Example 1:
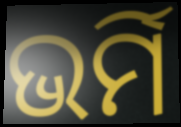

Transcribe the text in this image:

ଭର୍ମି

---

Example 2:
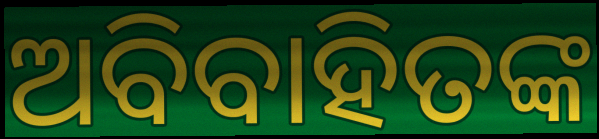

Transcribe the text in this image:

ଅବିବାହିତଙ୍କ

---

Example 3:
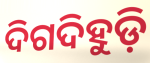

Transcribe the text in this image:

ଦିଗଦିହୁଡ଼ି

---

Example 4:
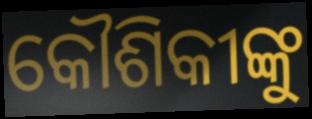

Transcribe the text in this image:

କୌଶିକୀଙ୍କୁ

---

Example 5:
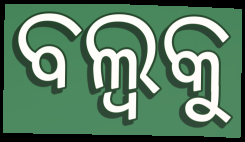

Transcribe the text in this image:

ବଲ୍ବକୁ